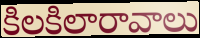
కిలకిలారావాలు